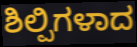
ಶಿಲ್ಪಿಗಳಾದ